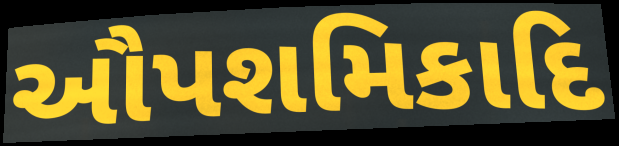
ઔપશમિકાદિ